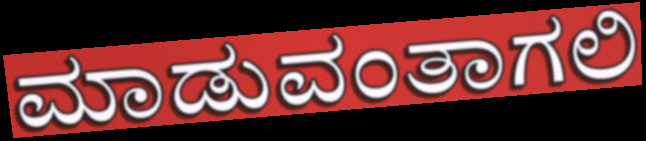
ಮಾಡುವಂತಾಗಲಿ